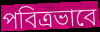
পবিত্রভাবে